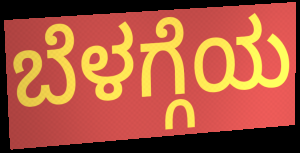
ಬೆಳಗ್ಗೆಯ